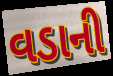
વડાની